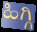
ಹಿಗ್ಗಿ